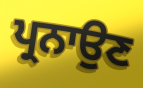
ਪ੍ਰਨਾਉਣ